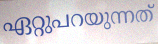
ഏറ്റുപറയുന്നത്